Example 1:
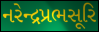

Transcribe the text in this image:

નરેન્દ્રપ્રભસૂરિ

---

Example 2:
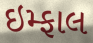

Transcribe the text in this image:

ઇમ્ફાલ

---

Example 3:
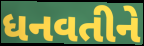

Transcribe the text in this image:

ધનવતીને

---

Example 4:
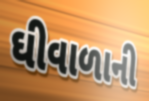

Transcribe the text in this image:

ઘીવાળાની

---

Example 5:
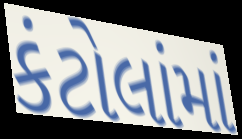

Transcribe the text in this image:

કંટોલાંમાં